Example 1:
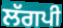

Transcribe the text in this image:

ਲੱਗਪੀ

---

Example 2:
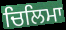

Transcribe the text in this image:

ਚਿਲਿਮਾ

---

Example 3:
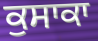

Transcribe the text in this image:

ਕੁਸਾਕਾ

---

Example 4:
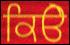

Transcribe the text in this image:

ਕਿੳੇ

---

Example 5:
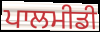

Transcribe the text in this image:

ਪਾਲਮੀਡੀ